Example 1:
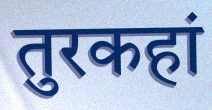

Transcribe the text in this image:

तुरकहां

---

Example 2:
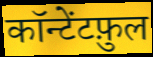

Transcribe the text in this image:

कॉन्टेंटफ़ुल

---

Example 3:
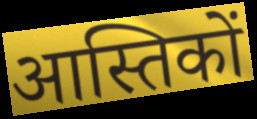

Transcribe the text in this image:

आस्तिकों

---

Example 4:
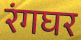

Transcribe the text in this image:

रंगघर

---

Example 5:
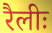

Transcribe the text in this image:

रैलीः